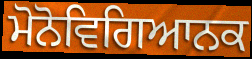
ਮੋਨੋਵਿਗਿਆਨਕ